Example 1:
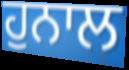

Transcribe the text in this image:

ਹੁਨਾਲ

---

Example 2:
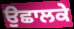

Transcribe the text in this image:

ਉਛਾਲਕੇ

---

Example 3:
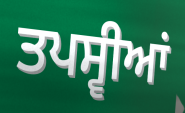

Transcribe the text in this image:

ਤਪਸ੍ਵੀਆਂ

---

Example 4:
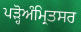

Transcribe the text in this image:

ਪੜ੍ਹੋਅੰਮ੍ਰਿਤਸਰ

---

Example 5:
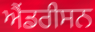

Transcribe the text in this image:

ਐਂਡਰੀਸਨ